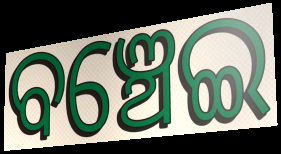
ବଞ୍ଚେଇ